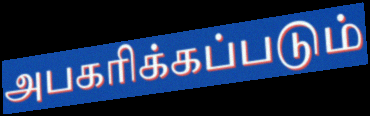
அபகரிக்கப்படும்